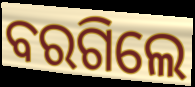
ବରଗିଲେ